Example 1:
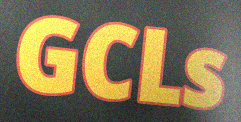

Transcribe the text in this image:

GCLs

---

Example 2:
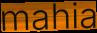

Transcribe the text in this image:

mahia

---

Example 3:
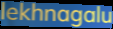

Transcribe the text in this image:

lekhnagalu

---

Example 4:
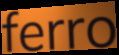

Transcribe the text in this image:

ferro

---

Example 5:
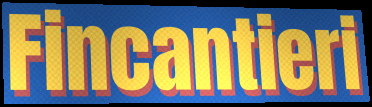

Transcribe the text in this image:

Fincantieri